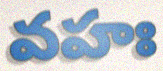
వహః